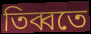
তিব্বতে